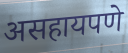
असहायपणे